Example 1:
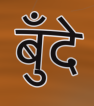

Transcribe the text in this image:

बुँदे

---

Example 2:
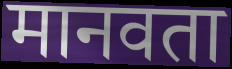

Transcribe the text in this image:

मानवता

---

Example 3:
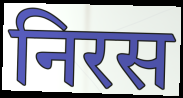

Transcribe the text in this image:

निरस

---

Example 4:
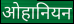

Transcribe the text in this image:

ओहानियन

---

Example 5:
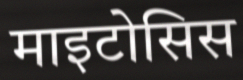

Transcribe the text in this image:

माइटोसिस